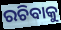
ରଚିବାକୁ